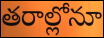
తరాల్లోనూ